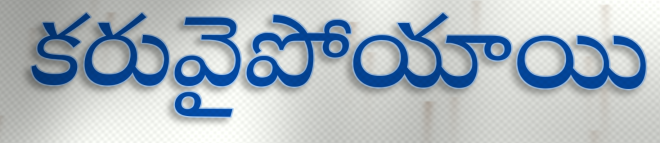
కరువైపోయాయి